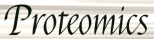
Proteomics